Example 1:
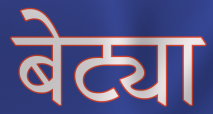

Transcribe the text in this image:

बेट्या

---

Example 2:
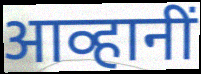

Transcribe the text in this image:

आव्हानीं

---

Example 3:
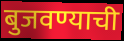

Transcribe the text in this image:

बुजवण्याची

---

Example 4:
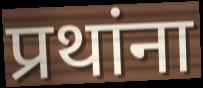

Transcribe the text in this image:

प्रथांना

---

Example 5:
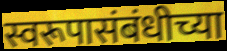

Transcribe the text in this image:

स्वरूपासंबंधीच्या